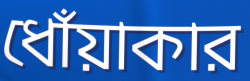
ধোঁয়াকার